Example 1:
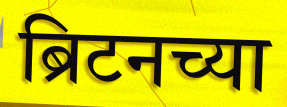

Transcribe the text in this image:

ब्रिटनच्या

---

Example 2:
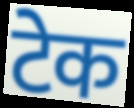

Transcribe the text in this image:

टेक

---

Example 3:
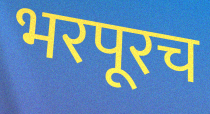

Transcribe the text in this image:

भरपूरच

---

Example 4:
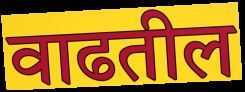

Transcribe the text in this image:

वाढतील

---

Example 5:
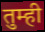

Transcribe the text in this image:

तुम्ही